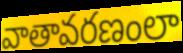
వాతావరణంలా